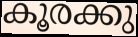
കൂരക്കു